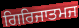
ਗਿਰਿਜਾਤਮਜ